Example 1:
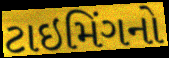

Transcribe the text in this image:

ટાઇમિંગનો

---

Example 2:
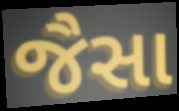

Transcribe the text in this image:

જૈસા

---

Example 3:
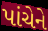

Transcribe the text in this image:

પાંચેને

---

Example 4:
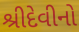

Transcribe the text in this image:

શ્રીદેવીનો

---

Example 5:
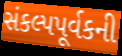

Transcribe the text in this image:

સંકલ્પપૂર્વકની